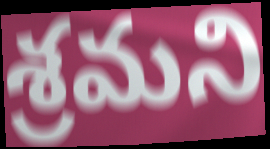
శ్రమని